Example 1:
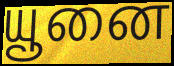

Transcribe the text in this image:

யூனை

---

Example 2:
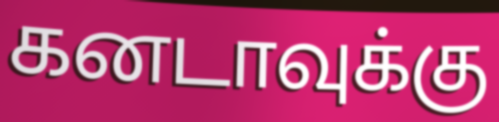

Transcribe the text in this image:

கனடாவுக்கு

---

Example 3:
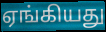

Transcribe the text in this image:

ஏங்கியது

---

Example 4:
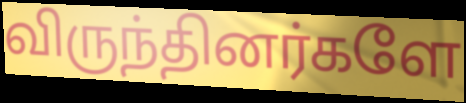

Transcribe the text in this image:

விருந்தினர்களே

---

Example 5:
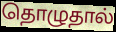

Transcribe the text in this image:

தொழுதால்